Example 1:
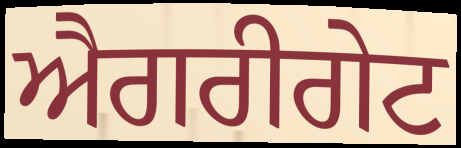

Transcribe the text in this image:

ਐਗਰੀਗੇਟ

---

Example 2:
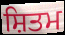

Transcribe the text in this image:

ਸ਼ਿਤਮ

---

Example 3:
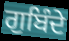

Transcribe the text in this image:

ਗੁਬਿੰਦੇ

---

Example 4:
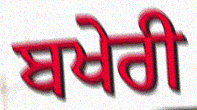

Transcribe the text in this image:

ਬਖੇਰੀ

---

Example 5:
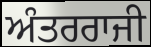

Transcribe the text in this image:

ਅੰਤਰਰਾਜੀ